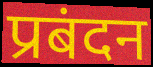
प्रबंदन